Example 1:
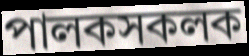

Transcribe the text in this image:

পালকসকলক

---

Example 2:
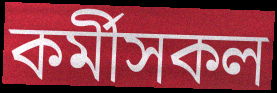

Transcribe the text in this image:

কৰ্মীসকল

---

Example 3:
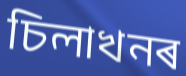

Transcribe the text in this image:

চিলাখনৰ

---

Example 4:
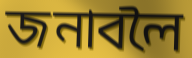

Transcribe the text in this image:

জনাবলৈ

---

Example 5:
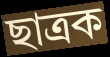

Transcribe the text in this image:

ছাত্ৰক